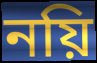
নয়ি